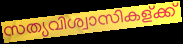
സത്യവിശ്വാസികള്ക്ക്